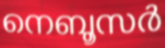
നെബൂസർ